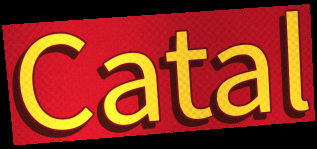
Catal